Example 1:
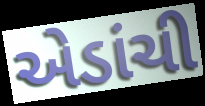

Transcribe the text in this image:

એડાંચી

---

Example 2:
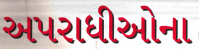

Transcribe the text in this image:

અપરાધીઓના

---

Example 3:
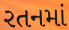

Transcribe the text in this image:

રતનમાં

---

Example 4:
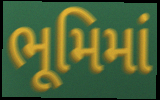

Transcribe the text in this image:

ભૂમિમાં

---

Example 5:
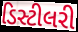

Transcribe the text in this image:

ડિસ્ટીલરી